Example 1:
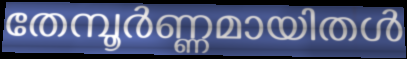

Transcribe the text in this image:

തേമ്പൂർണ്ണമായിതൾ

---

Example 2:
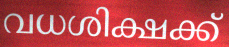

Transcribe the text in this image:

വധശിക്ഷക്ക്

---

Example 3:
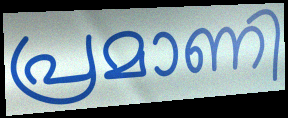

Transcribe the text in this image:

പ്രമാണി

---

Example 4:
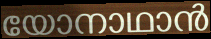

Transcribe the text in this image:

യോനാഥാൻ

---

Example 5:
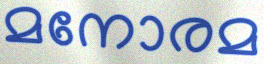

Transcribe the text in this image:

മനോരമ